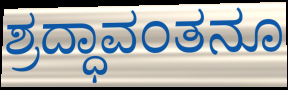
ಶ್ರದ್ಧಾವಂತನೂ